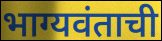
भाग्यवंताची